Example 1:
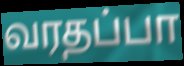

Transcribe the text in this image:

வரதப்பா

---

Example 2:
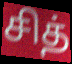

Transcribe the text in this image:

சித்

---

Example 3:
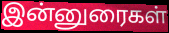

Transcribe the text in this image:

இன்னுரைகள்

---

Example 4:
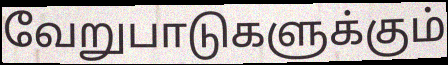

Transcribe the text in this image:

வேறுபாடுகளுக்கும்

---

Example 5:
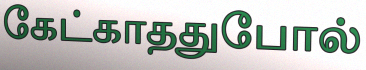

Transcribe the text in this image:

கேட்காததுபோல்